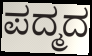
ಪದ್ಮದ